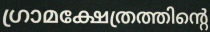
ഗ്രാമക്ഷേത്രത്തിന്റെ